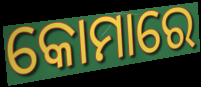
କୋମାରେ